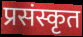
प्रसंस्कृत